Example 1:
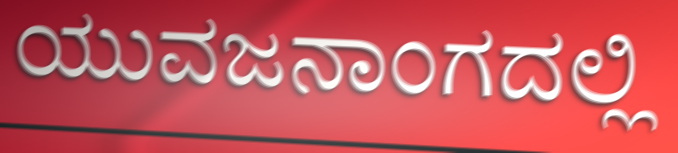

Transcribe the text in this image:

ಯುವಜನಾಂಗದಲ್ಲಿ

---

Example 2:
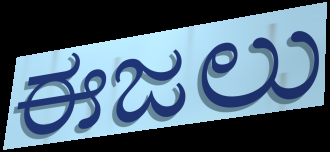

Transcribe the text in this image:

ಈಜಲು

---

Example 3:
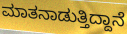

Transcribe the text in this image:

ಮಾತನಾಡುತ್ತಿದ್ದಾನೆ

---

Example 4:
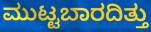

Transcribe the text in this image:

ಮುಟ್ಟಬಾರದಿತ್ತು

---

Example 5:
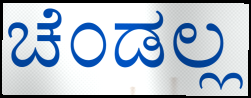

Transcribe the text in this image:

ಚೆಂಡಲ್ಲ